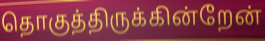
தொகுத்திருக்கின்றேன்